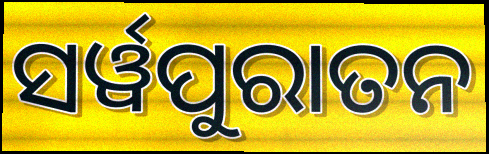
ସର୍ୱପୁରାତନ